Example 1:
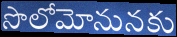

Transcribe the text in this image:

సొలోమోనునకు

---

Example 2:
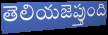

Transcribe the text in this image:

తెలియజెప్తుంది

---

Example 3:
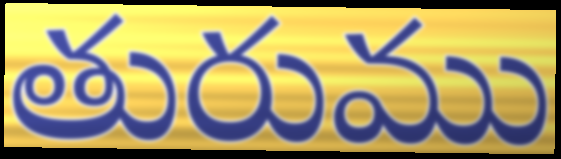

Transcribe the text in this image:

తురుము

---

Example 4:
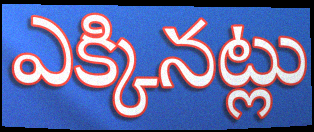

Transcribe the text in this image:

ఎక్కినట్లు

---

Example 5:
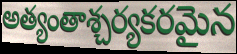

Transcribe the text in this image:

అత్యంతాశ్చర్యకరమైన